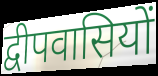
द्वीपवासियों